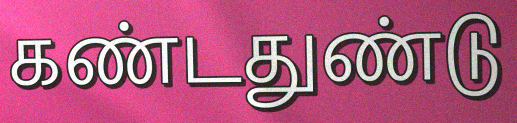
கண்டதுண்டு